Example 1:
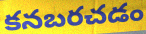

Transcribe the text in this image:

కనబరచడం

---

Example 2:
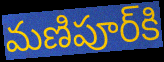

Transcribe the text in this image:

మణిపూర్‌కి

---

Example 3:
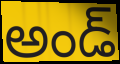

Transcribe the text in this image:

అండ్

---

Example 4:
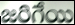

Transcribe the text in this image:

జరిగేయి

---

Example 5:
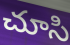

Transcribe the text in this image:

చూసి